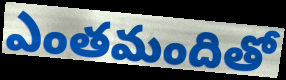
ఎంతమందితో